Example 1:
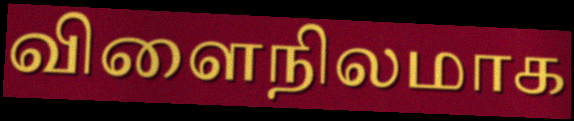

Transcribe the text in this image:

விளைநிலமாக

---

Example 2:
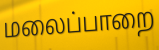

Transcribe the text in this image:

மலைப்பாறை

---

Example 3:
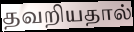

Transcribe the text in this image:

தவறியதால்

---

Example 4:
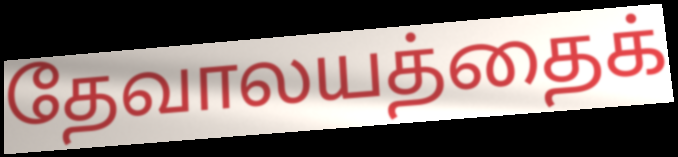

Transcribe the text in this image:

தேவாலயத்தைக்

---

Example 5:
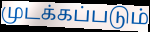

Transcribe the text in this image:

முடக்கப்படும்